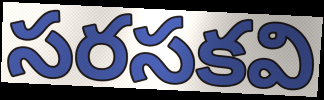
సరసకవి